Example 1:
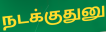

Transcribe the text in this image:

நடக்குதுனு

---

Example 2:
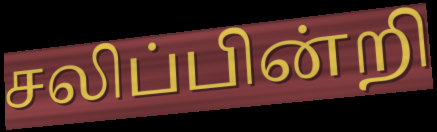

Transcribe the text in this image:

சலிப்பின்றி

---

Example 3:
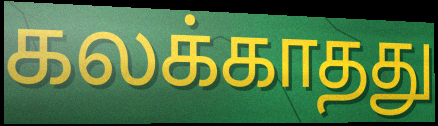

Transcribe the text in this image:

கலக்காதது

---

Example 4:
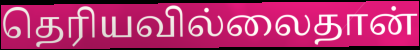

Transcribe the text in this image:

தெரியவில்லைதான்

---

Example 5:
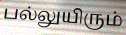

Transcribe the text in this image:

பல்லுயிரும்